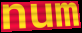
num